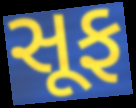
સૂફ